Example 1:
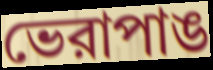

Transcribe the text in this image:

ভেরাপাঙ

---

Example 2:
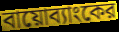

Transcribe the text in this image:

বায়োব্যাংকের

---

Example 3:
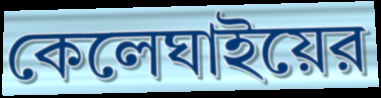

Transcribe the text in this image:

কেলেঘাইয়ের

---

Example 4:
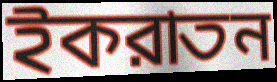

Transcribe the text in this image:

ইকরাতন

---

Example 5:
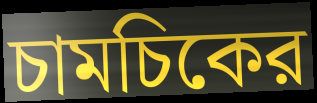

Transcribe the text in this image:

চামচিকের